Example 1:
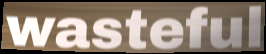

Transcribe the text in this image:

wasteful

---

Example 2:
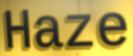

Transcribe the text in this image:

Haze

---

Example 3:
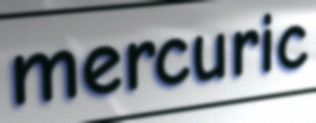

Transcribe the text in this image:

mercuric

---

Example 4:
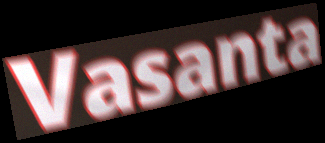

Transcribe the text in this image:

Vasanta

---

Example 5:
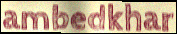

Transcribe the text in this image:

ambedkhar